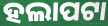
ହଲାପଟା